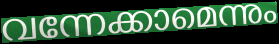
വന്നേക്കാമെന്നും